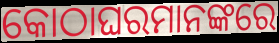
କୋଠାଘରମାନଙ୍କରେ